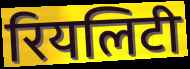
रियलिटी